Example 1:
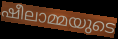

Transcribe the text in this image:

ഷീലാമ്മയുടെ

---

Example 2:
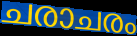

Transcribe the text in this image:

ചരാചരം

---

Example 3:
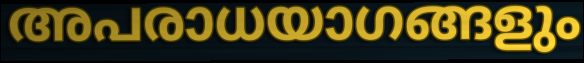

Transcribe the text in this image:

അപരാധയാഗങ്ങളും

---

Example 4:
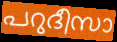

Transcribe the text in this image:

പറുദീസാ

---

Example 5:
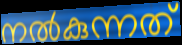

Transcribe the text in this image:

നൽകുന്നത്